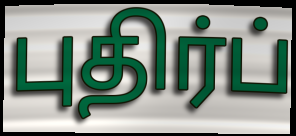
புதிர்ப்